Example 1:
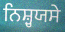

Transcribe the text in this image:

ਨਿਸ਼੍ਚਯਸੇ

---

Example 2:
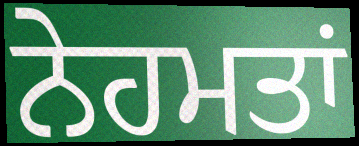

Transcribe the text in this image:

ਨੇਹਮਤਾਂ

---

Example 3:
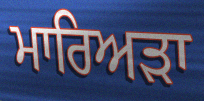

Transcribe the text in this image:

ਮਾਰਿਅੜਾ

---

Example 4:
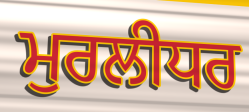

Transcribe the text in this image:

ਮੁਰਲੀਧਰ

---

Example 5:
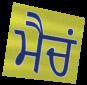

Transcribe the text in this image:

ਮੈਚਂ